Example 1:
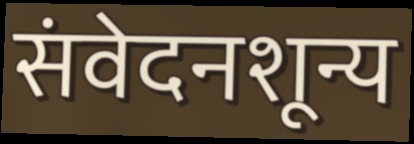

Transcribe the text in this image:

संवेदनशून्य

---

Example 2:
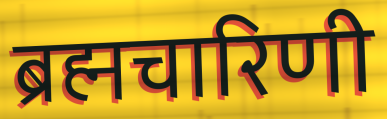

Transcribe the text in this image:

ब्रह्मचारिणी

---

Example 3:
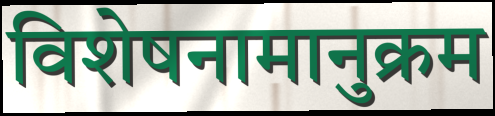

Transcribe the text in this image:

विशेषनामानुक्रम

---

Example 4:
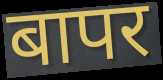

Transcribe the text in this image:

बापर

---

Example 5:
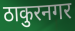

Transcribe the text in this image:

ठाकुरनगर